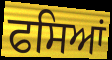
ਫਸਿਆਂ